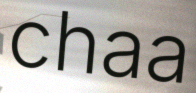
chaa